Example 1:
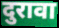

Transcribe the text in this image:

दुरावा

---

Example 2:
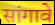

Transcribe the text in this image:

सांगावे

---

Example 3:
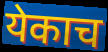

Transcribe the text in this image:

येकाच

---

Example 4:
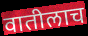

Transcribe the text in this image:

वातीलाच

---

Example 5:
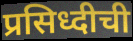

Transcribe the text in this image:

प्रसिध्दीची